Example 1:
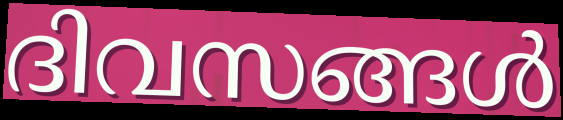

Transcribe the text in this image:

ദിവസങ്ങൾ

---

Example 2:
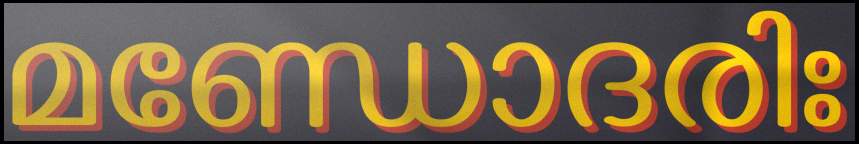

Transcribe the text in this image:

മണ്ഡോദരിഃ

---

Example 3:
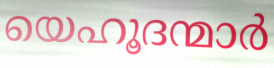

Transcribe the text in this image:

യെഹൂദന്മാർ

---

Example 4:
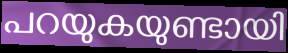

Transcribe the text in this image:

പറയുകയുണ്ടായി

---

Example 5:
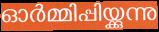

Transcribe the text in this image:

ഓർമ്മിപ്പിയ്ക്കുന്നു